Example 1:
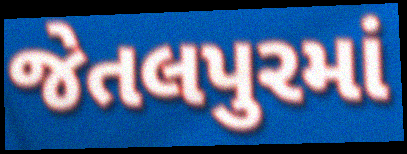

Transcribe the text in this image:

જેતલપુરમાં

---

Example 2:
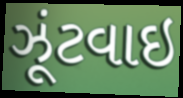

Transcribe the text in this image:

ઝૂંટવાઇ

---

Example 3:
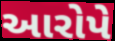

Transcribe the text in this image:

આરોપે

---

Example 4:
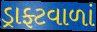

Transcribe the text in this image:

ડ્રાફ્ટવાળાં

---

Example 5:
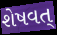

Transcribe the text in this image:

શેષવત્